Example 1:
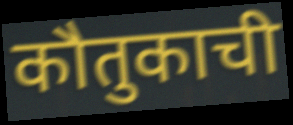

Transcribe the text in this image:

कौतुकाची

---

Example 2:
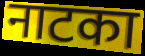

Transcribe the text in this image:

नाटका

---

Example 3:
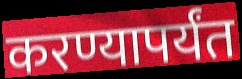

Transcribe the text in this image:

करण्यापर्यंत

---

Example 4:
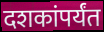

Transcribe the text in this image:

दशकांपर्यंत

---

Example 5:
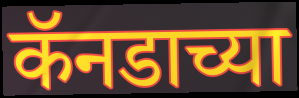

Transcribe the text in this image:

कॅनडाच्या